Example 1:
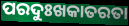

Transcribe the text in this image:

ପରଦୁଃଖକାତରତା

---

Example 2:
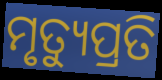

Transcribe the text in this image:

ମୃତ୍ୟୁପ୍ରତି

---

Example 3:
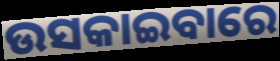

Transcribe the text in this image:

ଉସକାଇବାରେ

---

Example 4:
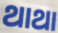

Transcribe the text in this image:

ଥାଥା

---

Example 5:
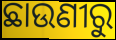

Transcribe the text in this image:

ଛାଉଣୀରୁ